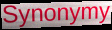
Synonymy